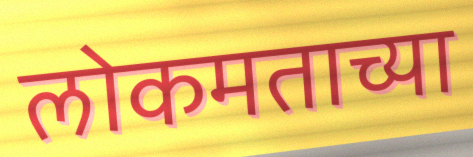
लोकमताच्या